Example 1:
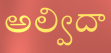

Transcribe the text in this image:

అల్విదా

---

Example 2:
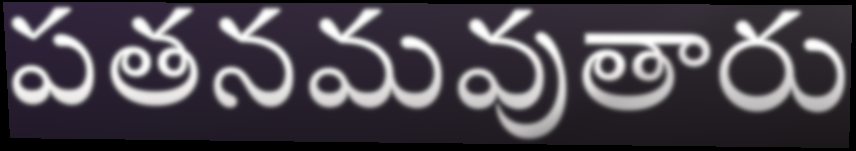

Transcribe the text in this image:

పతనమవుతారు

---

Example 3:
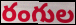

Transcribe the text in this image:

రంగుల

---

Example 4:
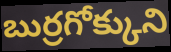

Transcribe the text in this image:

బుర్రగోక్కుని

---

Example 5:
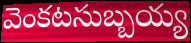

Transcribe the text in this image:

వెంకటసుబ్బయ్య